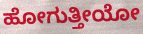
ಹೋಗುತ್ತೀಯೋ